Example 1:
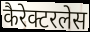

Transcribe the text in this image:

कैरेक्टरलेस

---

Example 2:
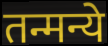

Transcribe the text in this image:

तन्मन्ये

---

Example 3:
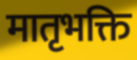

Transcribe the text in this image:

मातृभक्ति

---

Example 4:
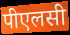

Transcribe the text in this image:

पीएलसी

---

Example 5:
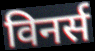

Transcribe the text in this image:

विनर्स